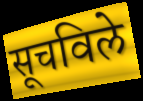
सूचविले